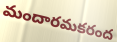
మందారమకరంద